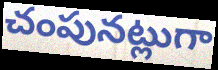
చంపునట్లుగా